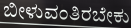
ಬೀಳುವಂತಿರಬೇಕು